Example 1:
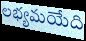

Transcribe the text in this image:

లభ్యమయేది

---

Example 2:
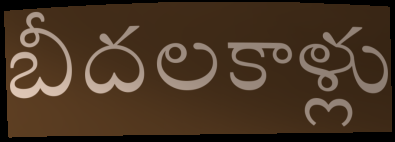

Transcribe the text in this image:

బీదలకాళ్లు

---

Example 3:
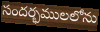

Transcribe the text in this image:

సందర్భములలోను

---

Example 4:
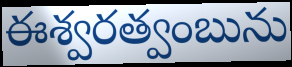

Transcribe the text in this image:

ఈశ్వరత్వంబును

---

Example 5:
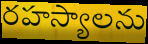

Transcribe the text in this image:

రహస్యాలను